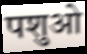
पशुओ